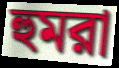
হুমরা